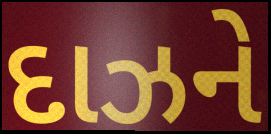
દાઝને